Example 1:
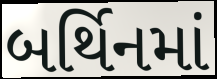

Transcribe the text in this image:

બર્થિનમાં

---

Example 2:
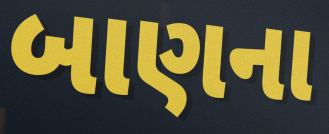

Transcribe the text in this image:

બાણના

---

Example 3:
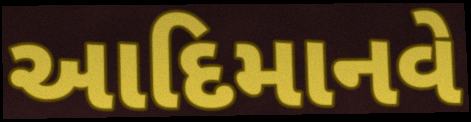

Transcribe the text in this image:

આદિમાનવે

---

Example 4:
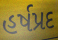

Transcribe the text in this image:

હર્ષપ્રદ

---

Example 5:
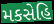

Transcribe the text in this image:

મકસેહિ